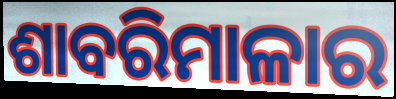
ଶାବରିମାଳାର